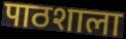
पाठशाला